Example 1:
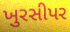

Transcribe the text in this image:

ખુરસીપર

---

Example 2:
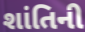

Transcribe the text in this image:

શાંતિની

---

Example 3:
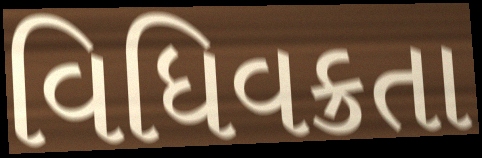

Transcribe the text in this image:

વિધિવક્રતા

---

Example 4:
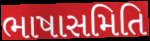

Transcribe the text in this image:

ભાષાસમિતિ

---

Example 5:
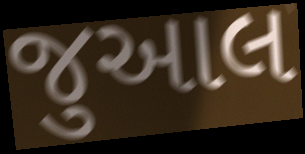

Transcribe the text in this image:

જુઆલ